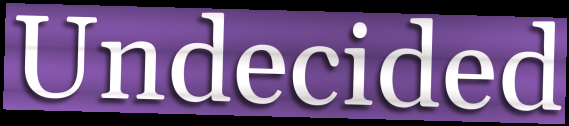
Undecided